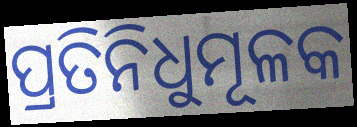
ପ୍ରତିନିଧୁମୂଳକ